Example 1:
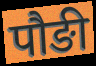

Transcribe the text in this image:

पौङी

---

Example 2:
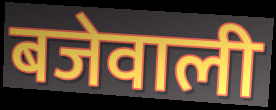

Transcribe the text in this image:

बजेवाली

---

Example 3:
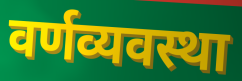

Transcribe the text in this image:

वर्णव्यवस्था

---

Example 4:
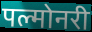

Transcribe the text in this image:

पल्मोनरी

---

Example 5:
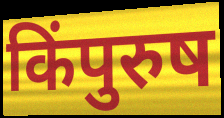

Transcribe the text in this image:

किंपुरुष